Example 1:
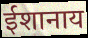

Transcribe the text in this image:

ईशानाय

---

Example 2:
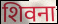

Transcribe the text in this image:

शिवना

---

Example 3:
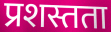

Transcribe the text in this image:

प्रशस्तता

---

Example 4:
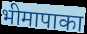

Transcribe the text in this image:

भीमापाका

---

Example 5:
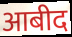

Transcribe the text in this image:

आबीद